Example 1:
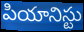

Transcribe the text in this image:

పియానిస్టు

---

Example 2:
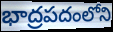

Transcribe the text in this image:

భాద్రపదంలోని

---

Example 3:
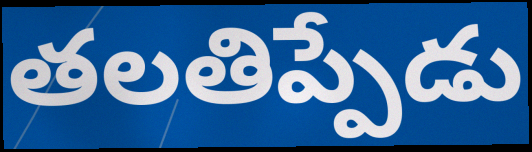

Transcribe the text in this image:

తలతిప్పేడు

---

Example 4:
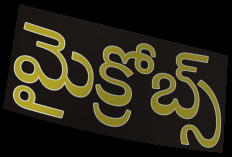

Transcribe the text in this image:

మైక్రోబ్స్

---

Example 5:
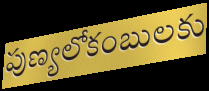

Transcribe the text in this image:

పుణ్యలోకంబులకు